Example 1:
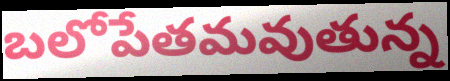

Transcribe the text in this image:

బలోపేతమవుతున్న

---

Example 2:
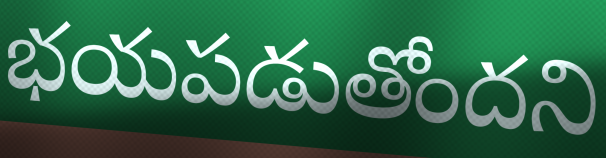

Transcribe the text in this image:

భయపడుతోందని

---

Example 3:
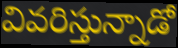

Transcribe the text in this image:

వివరిస్తున్నాడో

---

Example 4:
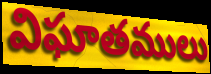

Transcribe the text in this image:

విఘాతములు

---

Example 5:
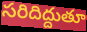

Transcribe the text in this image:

సరిదిద్దుతూ